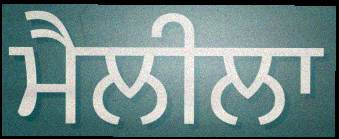
ਮੈਲੀਲਾ